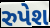
રુપેશ